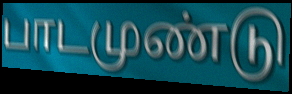
பாடமுண்டு